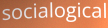
socialogical